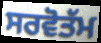
ਸਰਵੋਤੱਮ